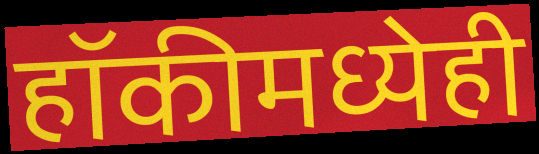
हॉकीमध्येही